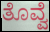
ತೊವ್ವೆ